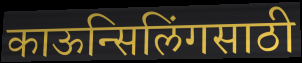
काऊन्सिलिंगसाठी